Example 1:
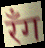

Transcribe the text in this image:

रॅंग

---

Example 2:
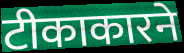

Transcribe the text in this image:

टीकाकारने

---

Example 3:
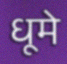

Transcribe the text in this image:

धूमे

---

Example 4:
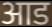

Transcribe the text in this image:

आड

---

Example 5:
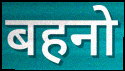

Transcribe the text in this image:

बहनो